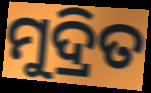
ମୁଦ୍ରିତ